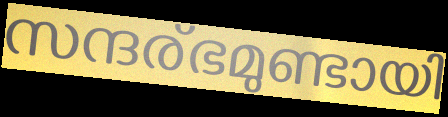
സന്ദര്ഭമുണ്ടായി